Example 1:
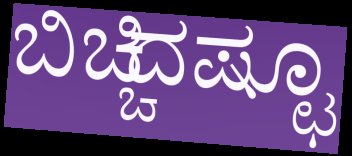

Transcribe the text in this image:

ಬಿಚ್ಚಿದಷ್ಟೂ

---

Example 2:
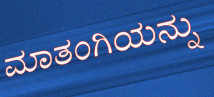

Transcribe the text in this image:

ಮಾತಂಗಿಯನ್ನು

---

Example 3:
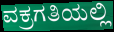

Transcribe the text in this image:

ವಕ್ರಗತಿಯಲ್ಲಿ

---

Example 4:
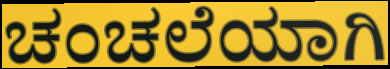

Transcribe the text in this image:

ಚಂಚಲೆಯಾಗಿ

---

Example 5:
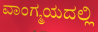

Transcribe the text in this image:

ವಾಂಗ್ಮಯದಲ್ಲಿ